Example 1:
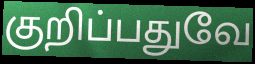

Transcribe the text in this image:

குறிப்பதுவே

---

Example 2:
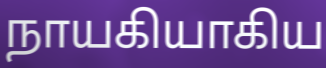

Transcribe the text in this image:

நாயகியாகிய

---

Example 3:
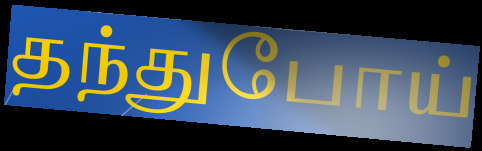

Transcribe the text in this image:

தந்துபோய்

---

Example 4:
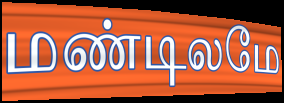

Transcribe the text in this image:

மண்டிலமே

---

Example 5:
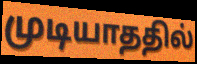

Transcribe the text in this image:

முடியாததில்